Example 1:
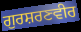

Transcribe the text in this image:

ਗੁਰਸ਼ਰਣਵੀਰ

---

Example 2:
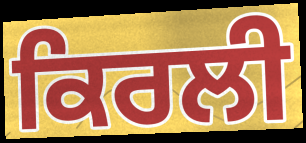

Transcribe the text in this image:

ਕਿਰਲੀ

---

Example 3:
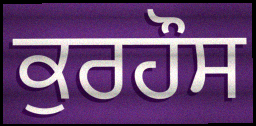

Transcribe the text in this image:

ਕੁਰਹੌਸ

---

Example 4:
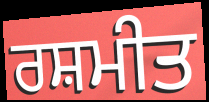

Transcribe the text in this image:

ਰਸ਼ਮੀਤ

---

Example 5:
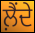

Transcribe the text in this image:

ਲ਼ੈਂਦੇ